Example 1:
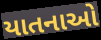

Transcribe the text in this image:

યાતનાઓ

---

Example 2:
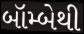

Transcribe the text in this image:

બૉમ્બેથી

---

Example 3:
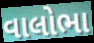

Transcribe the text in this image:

વાલોભા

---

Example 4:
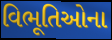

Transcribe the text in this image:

વિભૂતિઓના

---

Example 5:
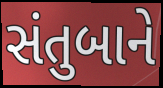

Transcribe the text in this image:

સંતુબાને